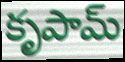
కృపామ్